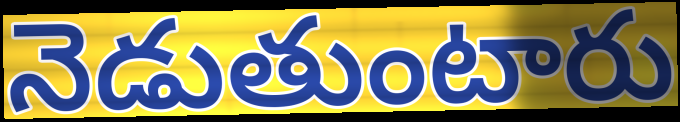
నెడుతుంటారు